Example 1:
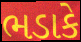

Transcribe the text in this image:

ભડાકે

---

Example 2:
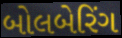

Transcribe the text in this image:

બોલબેરિંગ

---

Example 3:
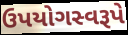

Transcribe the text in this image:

ઉપયોગસ્વરૂપે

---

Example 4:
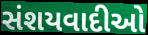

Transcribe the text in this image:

સંશયવાદીઓ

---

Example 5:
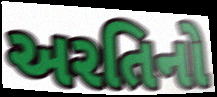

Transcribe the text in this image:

અરતિનો